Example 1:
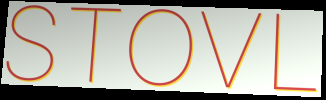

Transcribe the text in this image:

STOVL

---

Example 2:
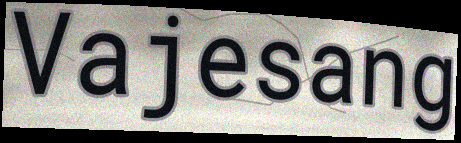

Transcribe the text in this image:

Vajesang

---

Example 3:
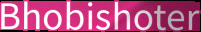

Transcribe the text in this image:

Bhobishoter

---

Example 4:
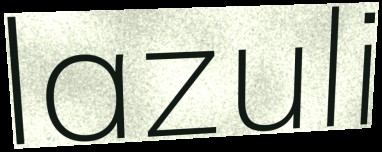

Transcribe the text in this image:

lazuli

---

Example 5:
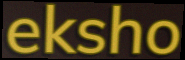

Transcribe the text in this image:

eksho